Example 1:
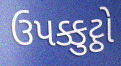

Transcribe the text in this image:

ઉપક્કુટ્ઠો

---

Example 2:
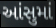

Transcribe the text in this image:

આંસુમાં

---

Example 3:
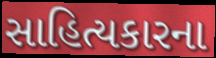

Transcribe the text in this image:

સાહિત્યકારના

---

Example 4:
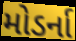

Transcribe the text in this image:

મોડર્ના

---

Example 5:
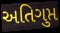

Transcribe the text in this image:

અતિગુપ્ત